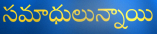
సమాధులున్నాయి